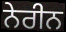
ਨੇਰੀਨ